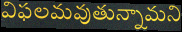
విఫలమవుతున్నామని